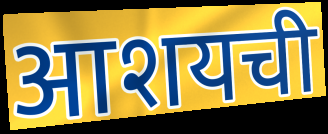
आशयची